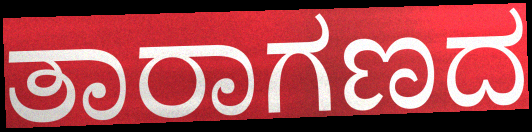
ತಾರಾಗಣದ